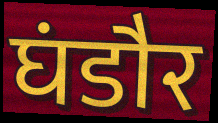
घंडौर